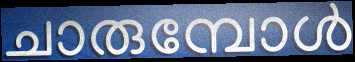
ചാരുമ്പോൾ